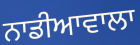
ਨਾਡੀਆਵਾਲਾ